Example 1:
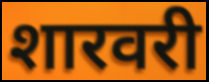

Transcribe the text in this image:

शारवरी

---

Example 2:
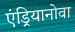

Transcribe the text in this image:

एंड्रियानोवा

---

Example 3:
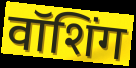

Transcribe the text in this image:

वॉशिंग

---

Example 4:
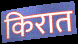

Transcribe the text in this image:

किरात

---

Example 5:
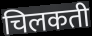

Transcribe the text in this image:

चिलकती